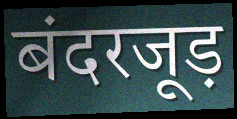
बंदरजूड़